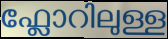
ഫ്ലോറിലുള്ള